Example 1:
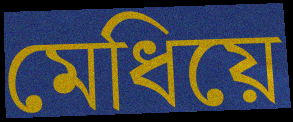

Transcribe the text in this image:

মেধিয়ে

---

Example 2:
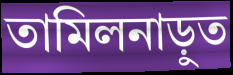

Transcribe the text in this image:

তামিলনাড়ুত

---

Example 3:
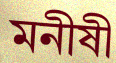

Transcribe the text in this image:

মনীষী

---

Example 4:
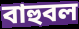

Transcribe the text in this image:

বাহুবল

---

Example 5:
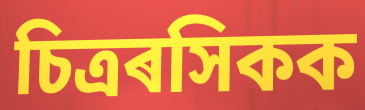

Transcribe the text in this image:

চিত্ৰৰসিকক